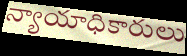
న్యాయాధికారులు